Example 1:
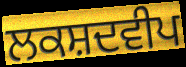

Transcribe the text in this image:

ਲਕਸ਼ਦਵੀਪ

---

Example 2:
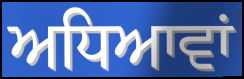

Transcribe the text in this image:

ਅਧਿਆਵਾਂ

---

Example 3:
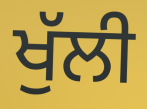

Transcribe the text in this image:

ਖੁੱਲੀ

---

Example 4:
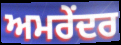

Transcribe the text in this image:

ਅਮਰੇਂਦਰ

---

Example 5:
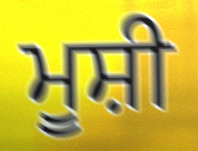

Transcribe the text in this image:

ਮੂਸ਼ੀ